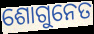
ଶୋଗୁନେତ